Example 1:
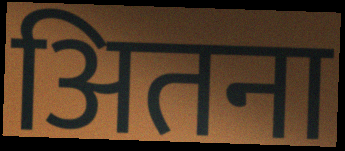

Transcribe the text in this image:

अितना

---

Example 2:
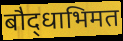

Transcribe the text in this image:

बौद्धाभिमत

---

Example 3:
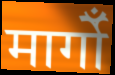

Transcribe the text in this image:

मार्गोँ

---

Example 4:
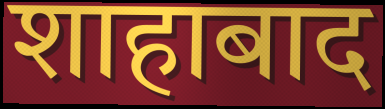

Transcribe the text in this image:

शाहाबाद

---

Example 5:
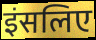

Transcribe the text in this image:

इंसलिए